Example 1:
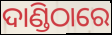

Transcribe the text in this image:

ଦାଣ୍ଡିଠାରେ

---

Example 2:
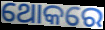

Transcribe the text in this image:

ଥୋକରେ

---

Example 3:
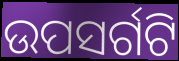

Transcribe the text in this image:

ଉପସର୍ଗଟି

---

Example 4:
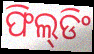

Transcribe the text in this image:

ଫିଲ୍‌ଡିଂ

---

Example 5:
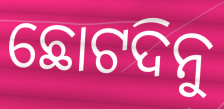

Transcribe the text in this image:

ଛୋଟଦିନୁ